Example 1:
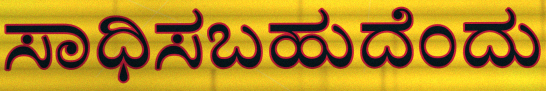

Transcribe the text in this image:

ಸಾಧಿಸಬಹುದೆಂದು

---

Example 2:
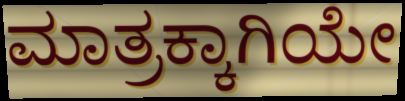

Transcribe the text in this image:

ಮಾತ್ರಕ್ಕಾಗಿಯೇ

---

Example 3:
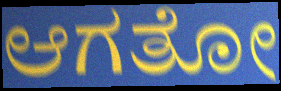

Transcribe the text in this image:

ಆಗತೋ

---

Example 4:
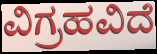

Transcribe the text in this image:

ವಿಗ್ರಹವಿದೆ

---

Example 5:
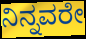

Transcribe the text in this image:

ನಿನ್ನವರೇ